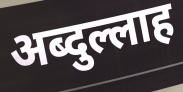
अब्दुल्लाह